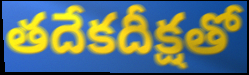
తదేకదీక్షతో